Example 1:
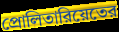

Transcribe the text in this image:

প্রোলিতারিয়েতের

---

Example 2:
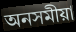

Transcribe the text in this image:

অনসমীয়া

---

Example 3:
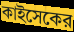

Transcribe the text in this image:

কাইসেকের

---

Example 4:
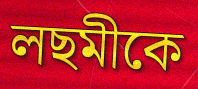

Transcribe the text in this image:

লছমীকে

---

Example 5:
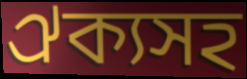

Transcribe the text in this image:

ঐক্যসহ